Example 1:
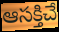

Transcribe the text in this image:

ఆసక్తిచే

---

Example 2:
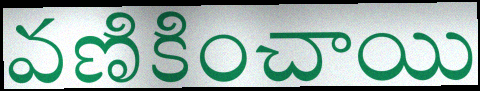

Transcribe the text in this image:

వణికించాయి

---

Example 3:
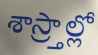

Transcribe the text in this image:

శాస్ర్తాల్లో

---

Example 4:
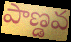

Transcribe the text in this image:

పాణ్డవ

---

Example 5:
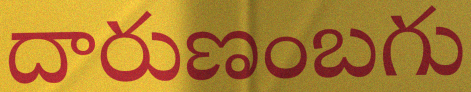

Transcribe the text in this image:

దారుణంబగు